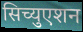
सिच्युएशन